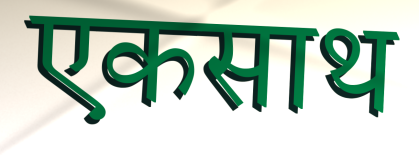
एकसाथ